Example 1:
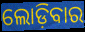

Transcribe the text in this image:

ଲୋଡ଼ିବାର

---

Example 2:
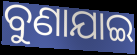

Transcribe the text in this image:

ବୁଣାଯାଇ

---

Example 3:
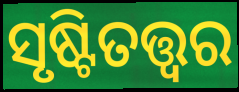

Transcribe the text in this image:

ସୃଷ୍ଟିତତ୍ତ୍ୱର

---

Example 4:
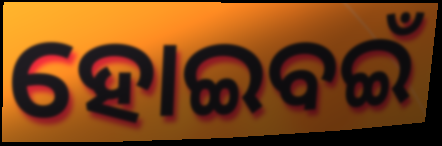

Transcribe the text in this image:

ହୋଇବଇଁ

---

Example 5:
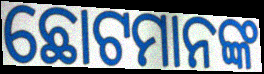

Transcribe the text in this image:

ଛୋଟମାନଙ୍କ